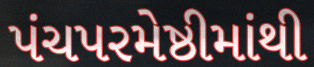
પંચપરમેષ્ઠીમાંથી